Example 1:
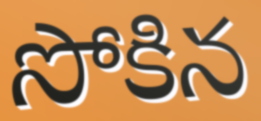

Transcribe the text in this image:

సోకిన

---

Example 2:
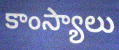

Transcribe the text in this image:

కాంస్యాలు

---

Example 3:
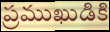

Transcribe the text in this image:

ప్రముఖుడికి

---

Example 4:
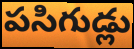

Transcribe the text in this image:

పసిగుడ్లు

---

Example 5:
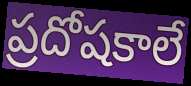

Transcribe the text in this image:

ప్రదోషకాలే